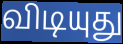
விடியுது